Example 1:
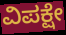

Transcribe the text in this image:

ವಿಪಕ್ಷೇ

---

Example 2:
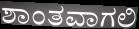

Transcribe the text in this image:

ಶಾಂತವಾಗಲಿ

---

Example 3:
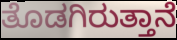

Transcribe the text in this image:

ತೊಡಗಿರುತ್ತಾನೆ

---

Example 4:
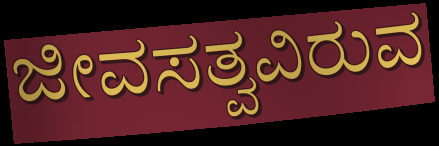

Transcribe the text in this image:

ಜೀವಸತ್ವವಿರುವ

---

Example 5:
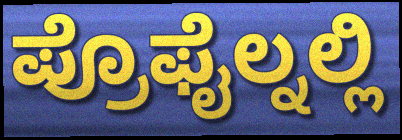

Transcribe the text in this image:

ಪ್ರೊಫೈಲ್ನಲ್ಲಿ